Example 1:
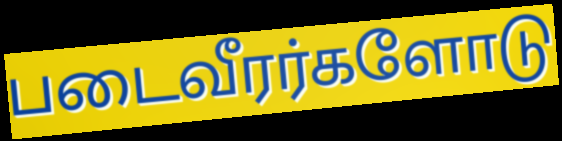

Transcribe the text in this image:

படைவீரர்களோடு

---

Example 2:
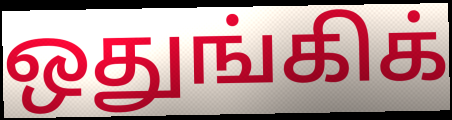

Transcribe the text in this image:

ஒதுங்கிக்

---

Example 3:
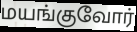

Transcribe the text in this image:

மயங்குவோர்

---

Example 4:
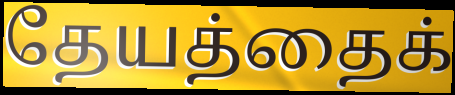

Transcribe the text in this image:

தேயத்தைக்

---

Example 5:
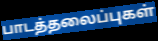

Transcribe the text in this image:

பாடத்தலைப்புகள்